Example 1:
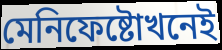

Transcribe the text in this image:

মেনিফেষ্টোখনেই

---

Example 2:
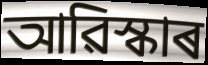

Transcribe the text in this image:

আৱিস্কাৰ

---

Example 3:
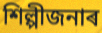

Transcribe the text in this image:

শিল্পীজনাৰ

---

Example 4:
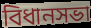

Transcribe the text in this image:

বিধানসভা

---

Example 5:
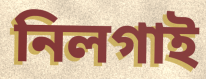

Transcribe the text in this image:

নিলগাই